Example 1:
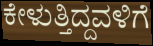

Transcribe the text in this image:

ಕೇಳುತ್ತಿದ್ದವಳಿಗೆ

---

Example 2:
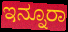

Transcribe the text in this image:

ಇನ್ನೂರಾ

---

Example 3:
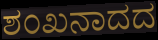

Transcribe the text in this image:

ಶಂಖನಾದದ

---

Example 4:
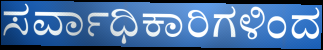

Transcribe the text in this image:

ಸರ್ವಾಧಿಕಾರಿಗಳಿಂದ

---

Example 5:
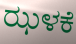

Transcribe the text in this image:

ಝಳಕೆ